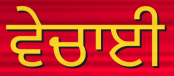
ਵੇਚਾਈ